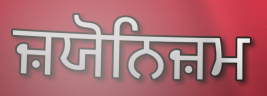
ਜ਼ਯੋਨਿਜ਼ਮ